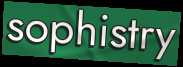
sophistry